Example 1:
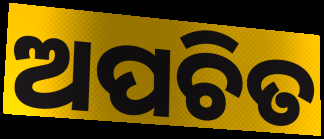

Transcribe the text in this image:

ଅପଚିତ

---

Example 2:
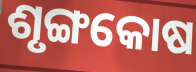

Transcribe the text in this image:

ଶୃଙ୍ଗକୋଷ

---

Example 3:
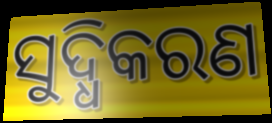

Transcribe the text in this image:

ସୁଦ୍ଧିକରଣ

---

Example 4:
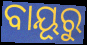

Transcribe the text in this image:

ବାୟୂରୁ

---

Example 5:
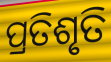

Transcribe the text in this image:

ପ୍ରତିଶୃତି